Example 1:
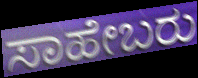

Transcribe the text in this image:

ಸಾಹೇಬರು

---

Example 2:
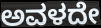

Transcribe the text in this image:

ಅವಳದೇ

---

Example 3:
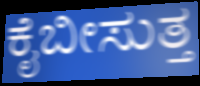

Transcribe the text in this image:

ಕೈಬೀಸುತ್ತ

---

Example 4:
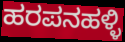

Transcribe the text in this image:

ಹರಪನಹಳ್ಳಿ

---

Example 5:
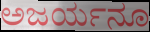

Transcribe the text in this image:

ಅಜರ್ಯನೂ